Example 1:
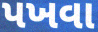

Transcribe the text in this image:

પખવા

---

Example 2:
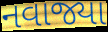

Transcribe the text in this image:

નવાજ્યા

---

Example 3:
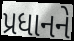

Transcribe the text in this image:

પ્રધાનને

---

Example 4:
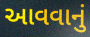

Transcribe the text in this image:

આવવાનું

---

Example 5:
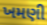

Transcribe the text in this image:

ખમણી